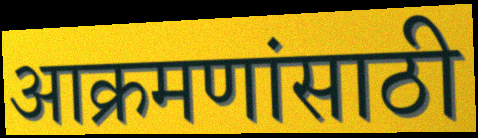
आक्रमणांसाठी